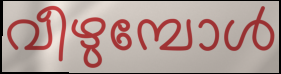
വീഴുമ്പോൾ